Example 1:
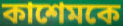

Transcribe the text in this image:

কাশেমকে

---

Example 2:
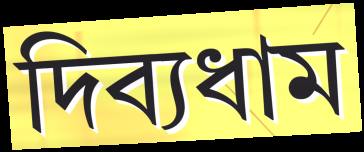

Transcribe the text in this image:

দিব্যধাম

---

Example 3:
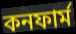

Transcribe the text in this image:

কনফার্ম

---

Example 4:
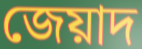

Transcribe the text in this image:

জেয়াদ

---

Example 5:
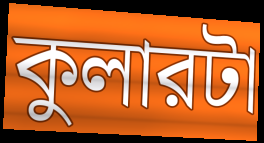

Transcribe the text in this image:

কুলারটা